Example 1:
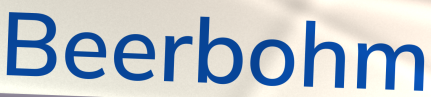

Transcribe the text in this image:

Beerbohm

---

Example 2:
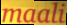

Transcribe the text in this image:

maali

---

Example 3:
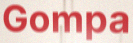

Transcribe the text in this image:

Gompa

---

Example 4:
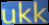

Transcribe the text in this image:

ukk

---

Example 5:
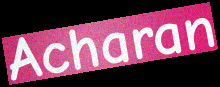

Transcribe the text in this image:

Acharan